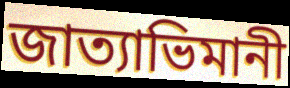
জাত্যাভিমানী